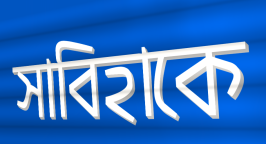
সাবিহাকে